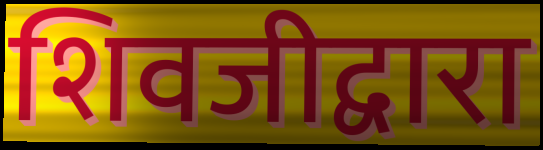
शिवजीद्वारा